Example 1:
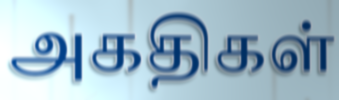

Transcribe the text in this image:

அகதிகள்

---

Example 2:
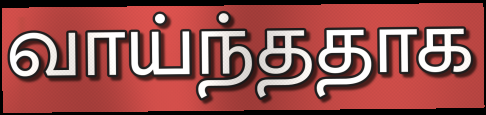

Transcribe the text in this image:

வாய்ந்ததாக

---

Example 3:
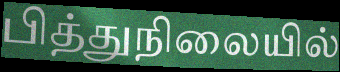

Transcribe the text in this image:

பித்துநிலையில்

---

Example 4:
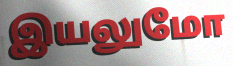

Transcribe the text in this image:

இயலுமோ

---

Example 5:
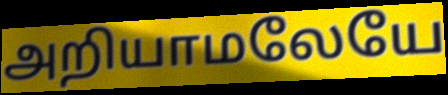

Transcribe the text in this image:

அறியாமலேயே